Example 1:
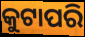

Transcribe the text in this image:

କୁଟାପରି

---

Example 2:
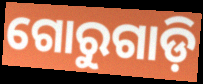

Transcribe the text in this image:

ଗୋରୁଗାଡ଼ି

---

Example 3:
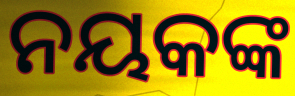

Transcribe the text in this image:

ନୟକଙ୍କ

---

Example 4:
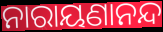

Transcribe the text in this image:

ନାରାୟଣାନନ୍ଦ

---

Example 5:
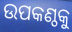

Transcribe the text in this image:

ଉପକଣ୍ଠକୁ